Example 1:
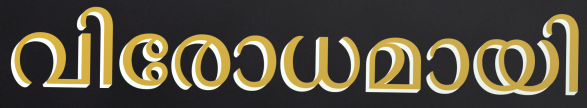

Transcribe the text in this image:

വിരോധമായി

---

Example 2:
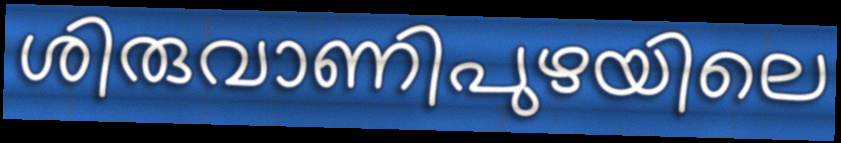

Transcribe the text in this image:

ശിരുവാണിപുഴയിലെ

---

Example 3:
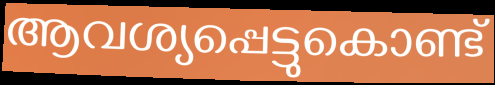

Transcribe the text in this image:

ആവശ്യപ്പെട്ടുകൊണ്ട്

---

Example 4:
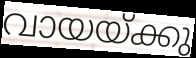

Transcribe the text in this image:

വായയ്ക്കു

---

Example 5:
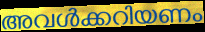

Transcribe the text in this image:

അവൾക്കറിയണം